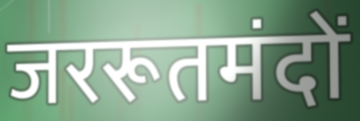
जररूतमंदों